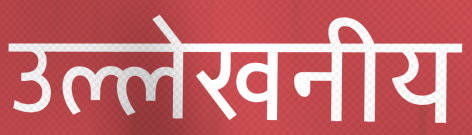
उल्लेखनीय